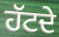
ਹੱਟਦੇ